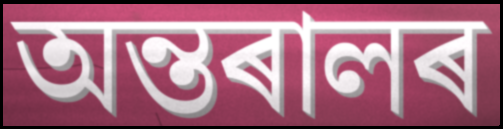
অন্তৰালৰ